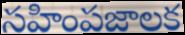
సహింపజాలక